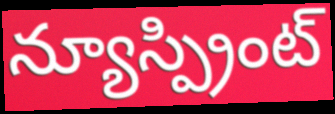
న్యూస్ప్రింట్